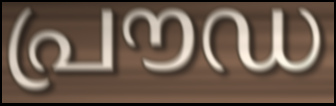
പ്രൗഡ